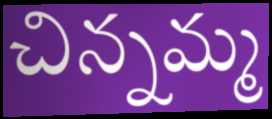
చిన్నమ్మ